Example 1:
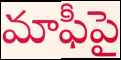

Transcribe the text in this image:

మాఫీపై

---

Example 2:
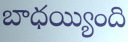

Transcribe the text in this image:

బాధయ్యింది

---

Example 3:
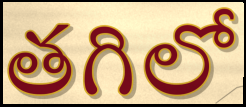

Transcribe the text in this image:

తగిలో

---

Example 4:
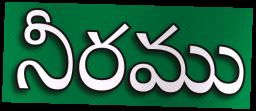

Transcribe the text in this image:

నీరము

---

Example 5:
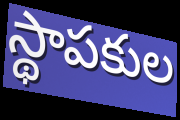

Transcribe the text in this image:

స్థాపకుల